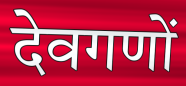
देवगणों